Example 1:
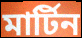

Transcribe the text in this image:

মাৰ্টিন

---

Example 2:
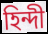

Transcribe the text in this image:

হিন্দী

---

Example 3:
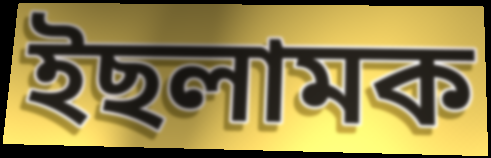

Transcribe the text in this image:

ইছলামক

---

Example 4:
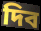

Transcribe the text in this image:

দিব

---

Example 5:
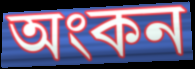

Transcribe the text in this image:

অংকন